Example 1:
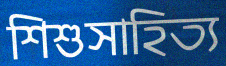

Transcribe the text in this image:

শিশুসাহিত্য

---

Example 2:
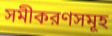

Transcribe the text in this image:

সমীকরণসমূহ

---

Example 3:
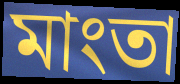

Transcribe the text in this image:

মাংতা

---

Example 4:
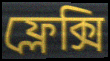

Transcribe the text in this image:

ফ্লেক্সি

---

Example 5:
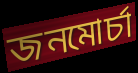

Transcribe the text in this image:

জনমোর্চা